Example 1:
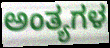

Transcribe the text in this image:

ಅಂತ್ಯಗಳ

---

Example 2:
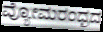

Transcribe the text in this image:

ವ್ಯೋಮರಂಧ್ರದ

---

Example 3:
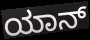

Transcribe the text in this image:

ಯಾನ್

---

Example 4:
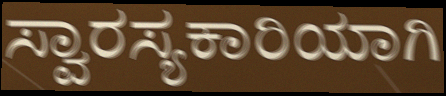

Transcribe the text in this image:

ಸ್ವಾರಸ್ಯಕಾರಿಯಾಗಿ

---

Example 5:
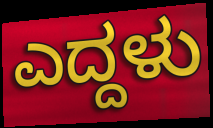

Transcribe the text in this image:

ಎದ್ದಳು